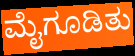
ಮೈಗೂಡಿತು